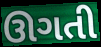
ઊગતી